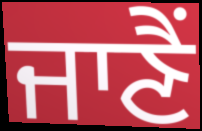
ਜਾਣੈਂ